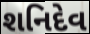
શનિદેવ